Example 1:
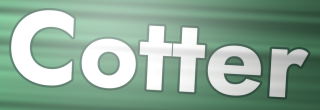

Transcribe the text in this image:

Cotter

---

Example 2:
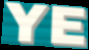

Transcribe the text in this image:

YE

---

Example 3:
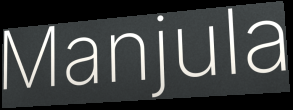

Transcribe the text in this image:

Manjula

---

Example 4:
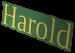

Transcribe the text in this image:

Harold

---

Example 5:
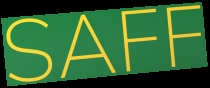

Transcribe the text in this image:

SAFF